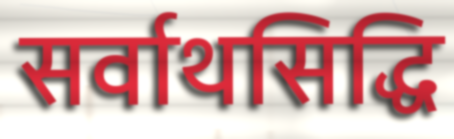
सर्वाथसिद्धि